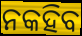
ନକହିବ